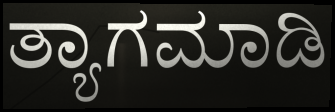
ತ್ಯಾಗಮಾಡಿ